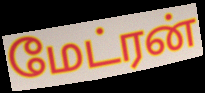
மேட்ரன்